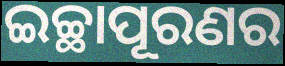
ଇଚ୍ଛାପୂରଣର